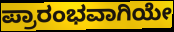
ಪ್ರಾರಂಭವಾಗಿಯೇ